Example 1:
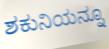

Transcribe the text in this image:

ಶಕುನಿಯನ್ನೂ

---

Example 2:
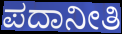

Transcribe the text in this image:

ಪದಾನೀತಿ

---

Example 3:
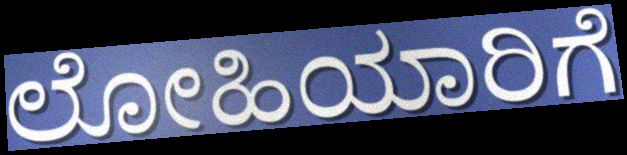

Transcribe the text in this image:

ಲೋಹಿಯಾರಿಗೆ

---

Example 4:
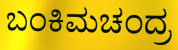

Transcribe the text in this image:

ಬಂಕಿಮಚಂದ್ರ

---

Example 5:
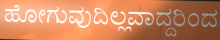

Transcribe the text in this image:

ಹೋಗುವುದಿಲ್ಲವಾದ್ದರಿಂದ